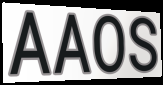
AAOS